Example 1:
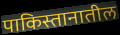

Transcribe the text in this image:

पाकिस्‍तानातील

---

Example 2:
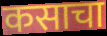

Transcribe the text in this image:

कसाचा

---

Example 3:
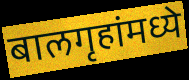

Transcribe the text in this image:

बालगृहांमध्ये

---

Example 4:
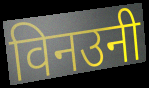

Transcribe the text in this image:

विनउनी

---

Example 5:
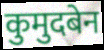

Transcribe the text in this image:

कुमुदबेन